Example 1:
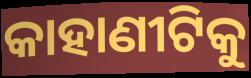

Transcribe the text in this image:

କାହାଣୀଟିକୁ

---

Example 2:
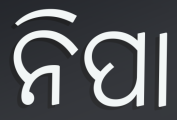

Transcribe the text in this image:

ନିପା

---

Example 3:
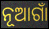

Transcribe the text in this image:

ନୂଆଗାଁ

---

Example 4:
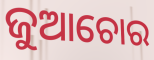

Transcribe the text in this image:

ଜୁଆଚୋର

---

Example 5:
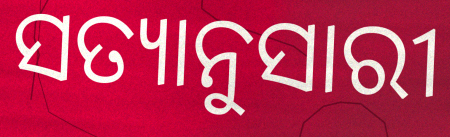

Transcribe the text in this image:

ସତ୍ୟାନୁସାରୀ